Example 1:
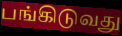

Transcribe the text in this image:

பங்கிடுவது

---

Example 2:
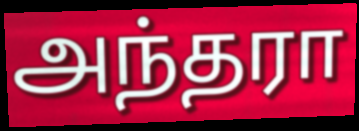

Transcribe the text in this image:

அந்தரா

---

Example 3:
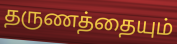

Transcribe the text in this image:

தருணத்தையும்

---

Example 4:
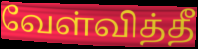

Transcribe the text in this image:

வேள்வித்தீ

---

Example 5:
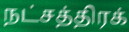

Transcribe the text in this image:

நட்சத்திரக்